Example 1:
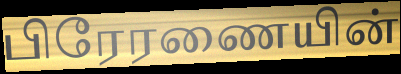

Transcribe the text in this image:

பிரேரணையின்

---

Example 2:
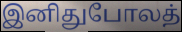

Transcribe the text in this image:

இனிதுபோலத்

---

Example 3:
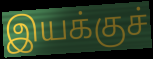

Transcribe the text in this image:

இயக்குச்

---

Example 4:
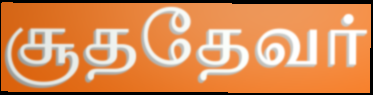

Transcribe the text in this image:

சூததேவர்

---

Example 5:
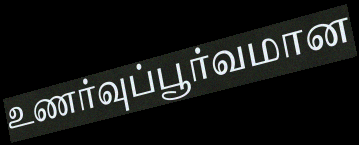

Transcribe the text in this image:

உணர்வுப்பூர்வமான